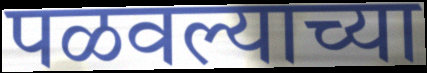
पळवल्याच्या